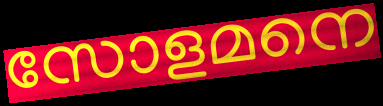
സോളമനെ